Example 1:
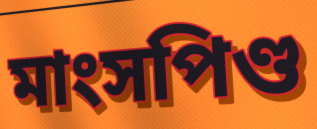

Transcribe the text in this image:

মাংসপিণ্ড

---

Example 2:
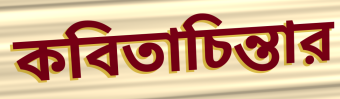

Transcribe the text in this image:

কবিতাচিন্তার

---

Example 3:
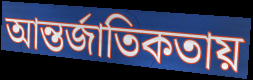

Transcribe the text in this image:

আন্তর্জাতিকতায়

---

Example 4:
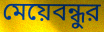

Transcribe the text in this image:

মেয়েবন্ধুর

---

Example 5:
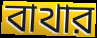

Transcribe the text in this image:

বাথার